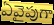
ఏవైపుగా